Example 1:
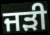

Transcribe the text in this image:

ਜੜੀ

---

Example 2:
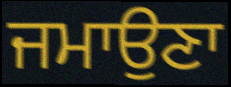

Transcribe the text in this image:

ਜਮਾਉਣਾ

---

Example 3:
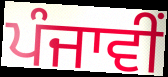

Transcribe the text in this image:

ਪੰਜਾਵੀਂ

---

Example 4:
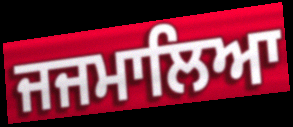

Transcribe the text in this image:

ਜਜਮਾਲਿਆ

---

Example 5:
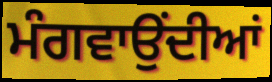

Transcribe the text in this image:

ਮੰਗਵਾਉਂਦੀਆਂ